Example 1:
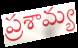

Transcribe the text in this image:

ప్రశామ్య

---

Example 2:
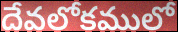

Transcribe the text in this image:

దేవలోకములో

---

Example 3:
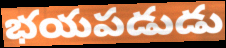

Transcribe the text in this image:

భయపడుడు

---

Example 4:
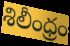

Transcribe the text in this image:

శిలీంధ్రం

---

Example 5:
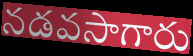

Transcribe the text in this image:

నడవసాగారు